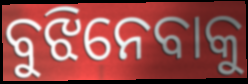
ବୁଝିନେବାକୁ